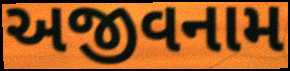
અજીવનામ